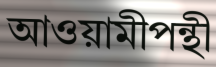
আওয়ামীপন্থী